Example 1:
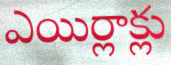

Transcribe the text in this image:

ఎయిర్లాక్లు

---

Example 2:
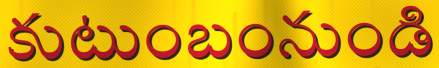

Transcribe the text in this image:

కుటుంబంనుండి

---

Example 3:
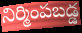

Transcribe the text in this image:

నిర్మింపబడ్డ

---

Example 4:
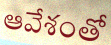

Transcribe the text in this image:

ఆవేశంతో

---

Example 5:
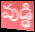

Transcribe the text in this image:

వుడ్ఢి